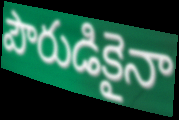
పౌరుడికైనా